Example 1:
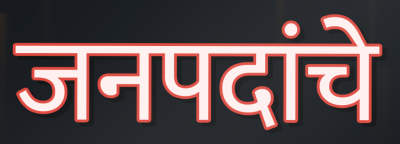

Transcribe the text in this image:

जनपदांचे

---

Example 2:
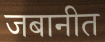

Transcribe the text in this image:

जबानीत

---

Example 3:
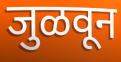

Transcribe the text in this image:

जुळवून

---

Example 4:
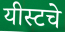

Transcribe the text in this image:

यीस्टचे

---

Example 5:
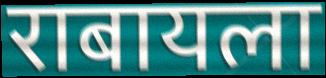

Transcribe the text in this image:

राबायला